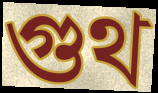
গুথ